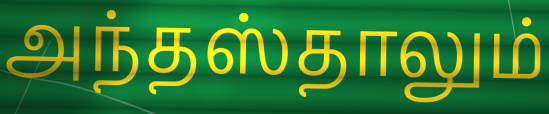
அந்தஸ்தாலும்